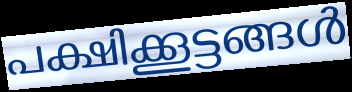
പക്ഷിക്കൂട്ടങ്ങൾ